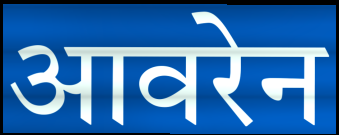
आवरेन